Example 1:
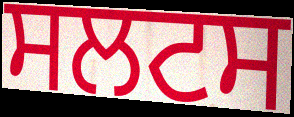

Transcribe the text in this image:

ਸਲਟਸ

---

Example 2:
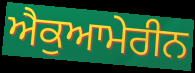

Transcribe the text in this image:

ਐਕੁਆਮੇਰੀਨ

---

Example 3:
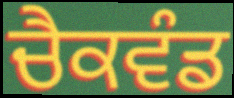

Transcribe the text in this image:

ਚੈਕਵੰਡ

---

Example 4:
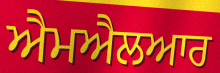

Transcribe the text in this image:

ਐਮਐਲਆਰ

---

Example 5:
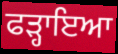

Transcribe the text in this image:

ਫੜ੍ਹਾਇਆ